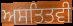
ਅਸਤਿਤਵੀ